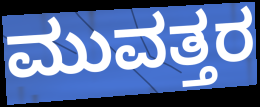
ಮುವತ್ತರ